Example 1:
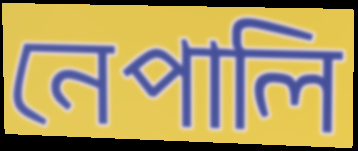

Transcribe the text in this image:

নেপালি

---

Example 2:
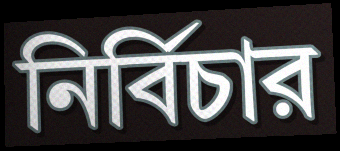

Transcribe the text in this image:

নির্বিচার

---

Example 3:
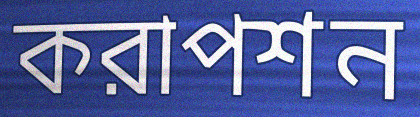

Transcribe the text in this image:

করাপশন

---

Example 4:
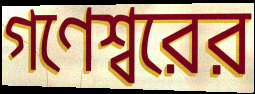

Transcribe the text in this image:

গণেশ্বরের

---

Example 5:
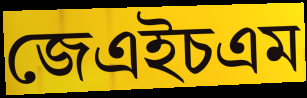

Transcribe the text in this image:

জেএইচএম